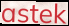
astek